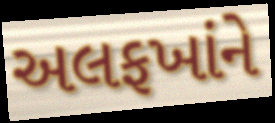
અલફખાંને